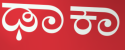
ಢಾಕಾ